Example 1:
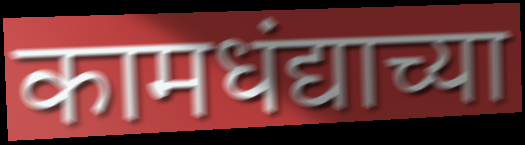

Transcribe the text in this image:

कामधंद्याच्या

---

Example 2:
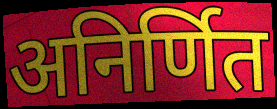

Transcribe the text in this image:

अनिर्णित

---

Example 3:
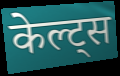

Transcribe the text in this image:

केल्ट्स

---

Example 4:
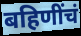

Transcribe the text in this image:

बहिणींचं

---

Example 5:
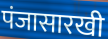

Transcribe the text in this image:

पंजासारखी